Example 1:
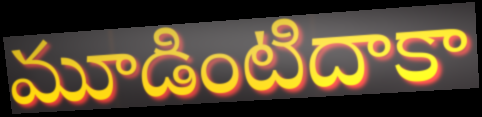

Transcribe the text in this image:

మూడింటిదాకా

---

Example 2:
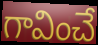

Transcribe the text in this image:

గావించే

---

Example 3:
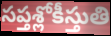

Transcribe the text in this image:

సప్తశ్లోకీస్తుతి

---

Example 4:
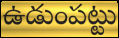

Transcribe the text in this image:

ఉడుంపట్టు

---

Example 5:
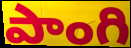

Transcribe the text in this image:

పాంగి